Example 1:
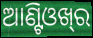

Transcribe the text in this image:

ଆଣ୍ଟିଓଖ୍‍ର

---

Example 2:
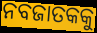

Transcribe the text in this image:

ନବଜାତକକୁ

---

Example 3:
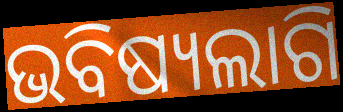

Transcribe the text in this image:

ଭବିଷ୍ୟଲାଗି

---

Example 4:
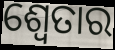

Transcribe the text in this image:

ଶ୍ଵେତାର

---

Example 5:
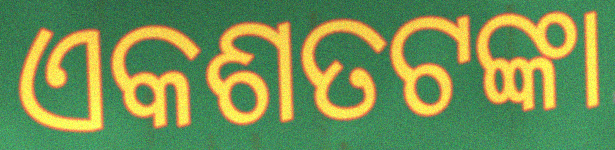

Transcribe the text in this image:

ଏକଶତଟଙ୍କା